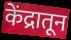
केंद्रातून